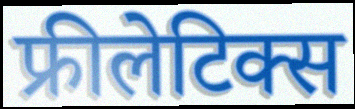
फ्रीलेटिक्स